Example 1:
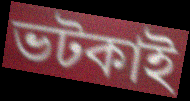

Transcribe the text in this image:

ভটকাই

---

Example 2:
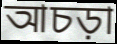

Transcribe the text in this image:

আচড়া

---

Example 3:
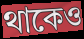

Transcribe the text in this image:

থাকেও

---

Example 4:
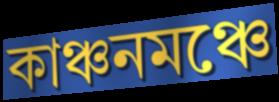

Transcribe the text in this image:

কাঞ্চনমঞ্চে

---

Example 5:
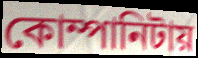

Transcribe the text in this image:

কোম্পানিটায়